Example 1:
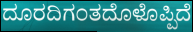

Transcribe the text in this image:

ದೂರದಿಗಂತದೊಳೊಪ್ಪಿದೆ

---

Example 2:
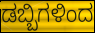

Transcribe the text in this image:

ಡಬ್ಬಿಗಳಿಂದ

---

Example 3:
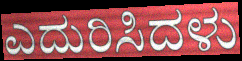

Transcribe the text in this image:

ಎದುರಿಸಿದಳು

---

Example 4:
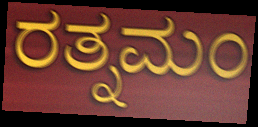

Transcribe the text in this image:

ರತ್ನಮಂ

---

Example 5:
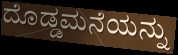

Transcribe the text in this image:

ದೊಡ್ಡಮನೆಯನ್ನು